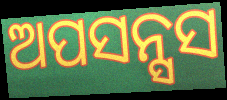
ଅପସନ୍ସସ